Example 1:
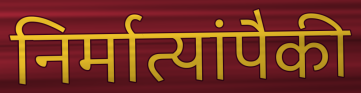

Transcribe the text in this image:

निर्मात्यांपैकी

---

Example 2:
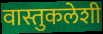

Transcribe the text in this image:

वास्तुकलेशी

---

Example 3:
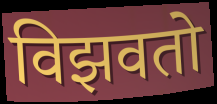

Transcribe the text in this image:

विझवतो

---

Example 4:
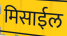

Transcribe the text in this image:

मिसाईल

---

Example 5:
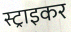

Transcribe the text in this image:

स्ट्राइकर